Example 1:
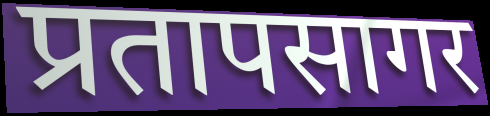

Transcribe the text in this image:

प्रतापसागर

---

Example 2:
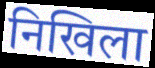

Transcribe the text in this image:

निखिला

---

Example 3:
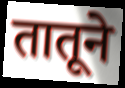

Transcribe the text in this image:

तातूने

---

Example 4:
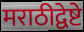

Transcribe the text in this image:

मराठीद्वेष्टे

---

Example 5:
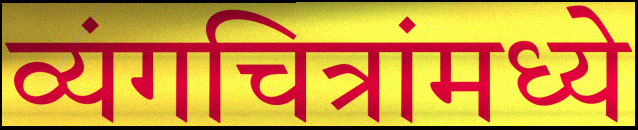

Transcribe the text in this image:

व्यंगचित्रांमध्ये